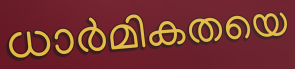
ധാർമികതയെ